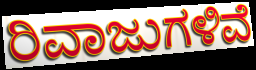
ರಿವಾಜುಗಳಿವೆ